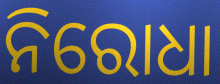
ନିରୋଧା